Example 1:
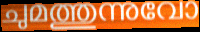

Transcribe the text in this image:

ചുമത്തുന്നുവോ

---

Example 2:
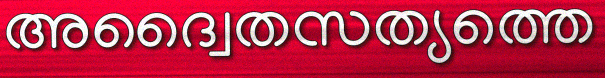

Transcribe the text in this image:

അദ്വൈതസത്യത്തെ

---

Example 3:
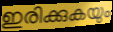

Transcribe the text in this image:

ഇരിക്കുകയും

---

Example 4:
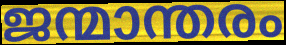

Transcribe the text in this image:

ജന്മാന്തരം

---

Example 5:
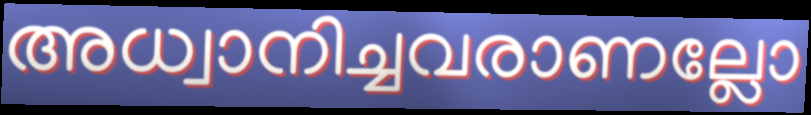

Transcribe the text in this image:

അധ്വാനിച്ചവരാണല്ലോ